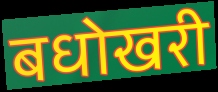
बधोखरी